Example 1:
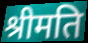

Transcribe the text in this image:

श्रीमति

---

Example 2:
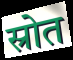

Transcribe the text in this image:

स्रोत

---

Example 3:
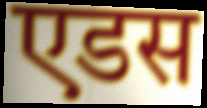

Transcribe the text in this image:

एडस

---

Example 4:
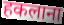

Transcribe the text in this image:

हकलाना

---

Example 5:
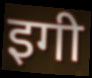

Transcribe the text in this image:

इगी